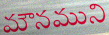
మౌనముని